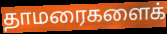
தாமரைகளைக்